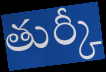
తుర్కీ